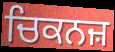
ਚਿਕਨਜ਼